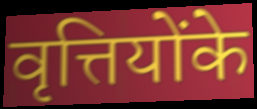
वृत्तियोंके